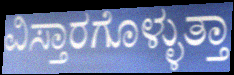
ವಿಸ್ತಾರಗೊಳ್ಳುತ್ತಾ